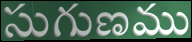
సుగుణము